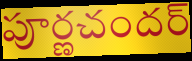
పూర్ణచందర్